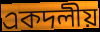
একদলীয়